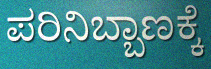
ಪರಿನಿಬ್ಬಾಣಕ್ಕೆ